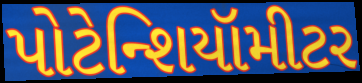
પોટેન્શિયૉમીટર